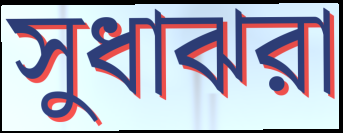
সুধাঝরা